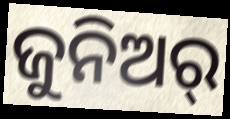
ଜୁନିଅର୍